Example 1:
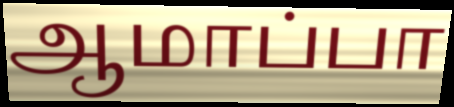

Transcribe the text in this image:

ஆமாப்பா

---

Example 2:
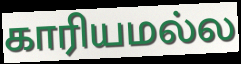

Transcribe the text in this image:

காரியமல்ல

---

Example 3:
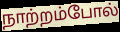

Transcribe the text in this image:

நாற்றம்போல்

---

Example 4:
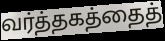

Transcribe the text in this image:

வர்த்தகத்தைத்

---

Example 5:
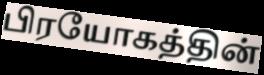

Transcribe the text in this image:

பிரயோகத்தின்